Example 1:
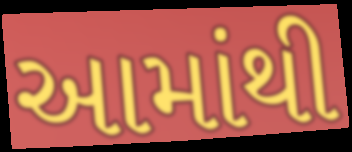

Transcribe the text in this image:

આમાંથી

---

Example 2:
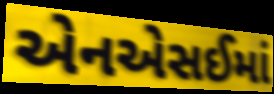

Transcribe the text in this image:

એનએસઈમાં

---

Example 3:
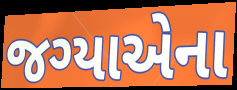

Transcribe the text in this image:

જગ્યાએના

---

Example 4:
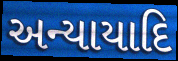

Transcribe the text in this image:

અન્યાયાદિ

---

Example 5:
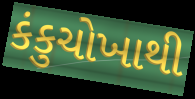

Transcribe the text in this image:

કંકુચોખાથી